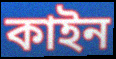
কাইন